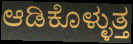
ಆಡಿಕೊಳ್ಳುತ್ತ